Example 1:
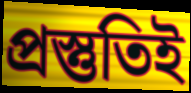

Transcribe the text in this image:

প্রস্তুতিই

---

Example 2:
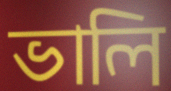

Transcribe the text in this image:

ভালি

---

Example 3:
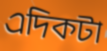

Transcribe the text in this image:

এদিকটা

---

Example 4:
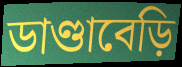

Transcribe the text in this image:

ডাণ্ডাবেড়ি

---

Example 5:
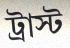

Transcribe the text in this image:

ট্রাস্ট